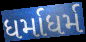
ધર્માધર્મ